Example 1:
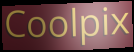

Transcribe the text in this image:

Coolpix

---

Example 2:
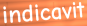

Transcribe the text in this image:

indicavit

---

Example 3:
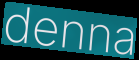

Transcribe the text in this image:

denna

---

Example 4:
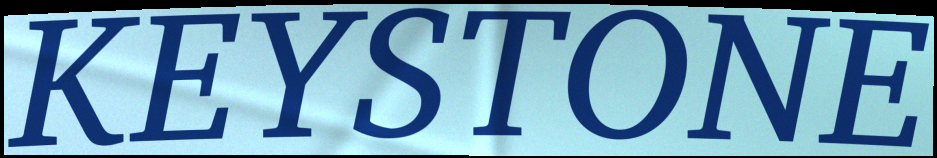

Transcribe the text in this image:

KEYSTONE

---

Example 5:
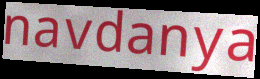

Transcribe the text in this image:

navdanya